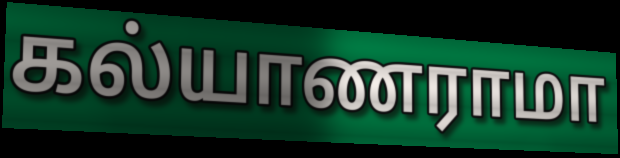
கல்யாணராமா